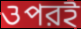
ওপরই